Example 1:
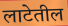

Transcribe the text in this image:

लाटेतील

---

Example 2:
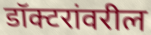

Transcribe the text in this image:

डॉक्टरांवरील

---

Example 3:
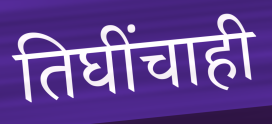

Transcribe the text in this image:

तिघींचाही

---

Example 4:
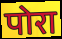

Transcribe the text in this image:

पोरा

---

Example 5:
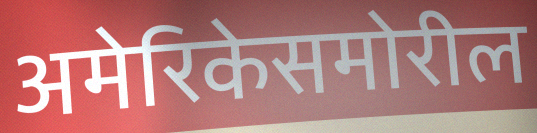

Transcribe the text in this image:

अमेरिकेसमोरील